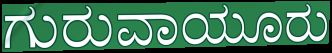
ಗುರುವಾಯೂರು